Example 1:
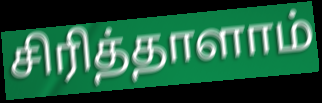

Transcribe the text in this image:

சிரித்தாளாம்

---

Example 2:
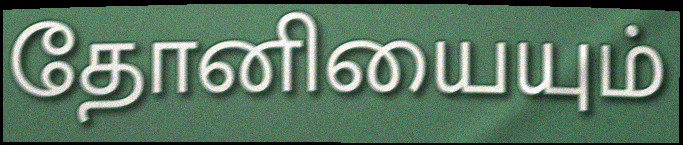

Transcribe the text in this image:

தோனியையும்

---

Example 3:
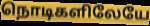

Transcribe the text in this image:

நொடிகளிலேயே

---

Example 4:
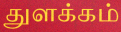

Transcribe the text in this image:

துளக்கம்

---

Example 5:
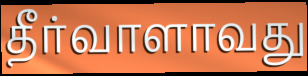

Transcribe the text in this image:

தீர்வாளாவது